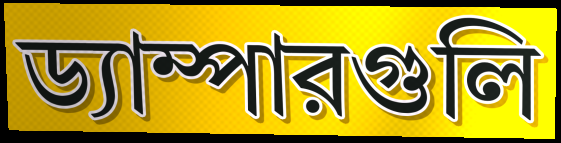
ড্যাম্পারগুলি